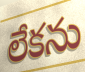
లేకను